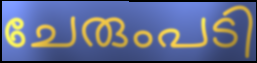
ചേരുംപടി